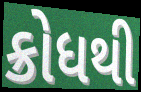
ક્રોધથી